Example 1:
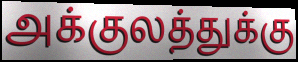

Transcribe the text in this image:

அக்குலத்துக்கு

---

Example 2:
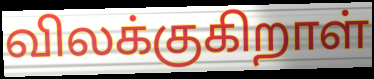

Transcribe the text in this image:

விலக்குகிறாள்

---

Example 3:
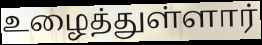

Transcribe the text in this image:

உழைத்துள்ளார்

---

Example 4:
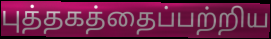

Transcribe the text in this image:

புத்தகத்தைப்பற்றிய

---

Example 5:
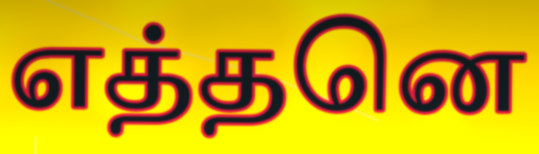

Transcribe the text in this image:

எத்தனெ